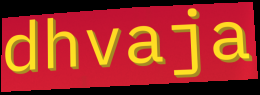
dhvaja